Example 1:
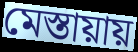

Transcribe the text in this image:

মেস্তায়ায়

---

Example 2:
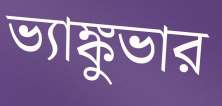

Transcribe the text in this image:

ভ্যাঙ্কুভার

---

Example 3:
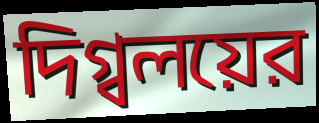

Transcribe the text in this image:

দিগ্বলয়ের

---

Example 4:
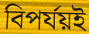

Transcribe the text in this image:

বিপর্যয়ই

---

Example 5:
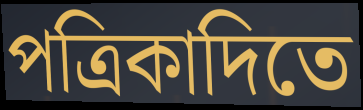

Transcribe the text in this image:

পত্রিকাদিতে